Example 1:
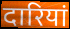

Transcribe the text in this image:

दारियां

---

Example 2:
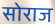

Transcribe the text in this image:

सोराज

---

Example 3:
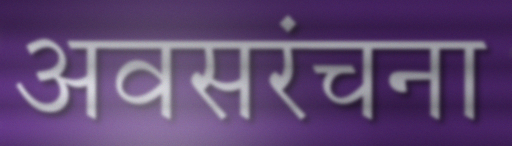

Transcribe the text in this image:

अवसरंचना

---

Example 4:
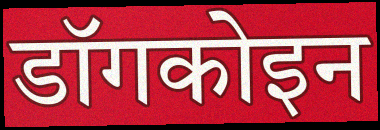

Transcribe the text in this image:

डॉगकोइन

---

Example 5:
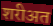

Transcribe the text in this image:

शरीअत